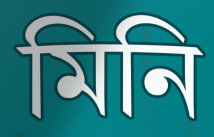
মিনি